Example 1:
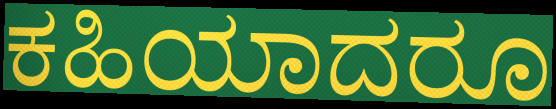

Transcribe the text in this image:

ಕಹಿಯಾದರೂ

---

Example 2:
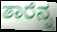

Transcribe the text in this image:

ತಾರೆನ್ನ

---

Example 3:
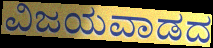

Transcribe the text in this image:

ವಿಜಯವಾಡದ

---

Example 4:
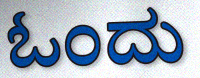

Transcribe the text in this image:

ಓಂದು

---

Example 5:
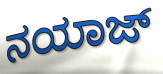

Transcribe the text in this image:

ನಯಾಜ್